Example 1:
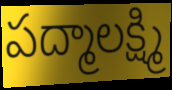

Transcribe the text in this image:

పద్మాలక్ష్మి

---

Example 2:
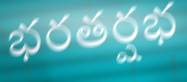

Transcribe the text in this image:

భరతర్షభ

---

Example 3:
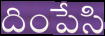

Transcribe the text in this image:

దింపేసి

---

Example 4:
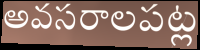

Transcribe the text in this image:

అవసరాలపట్ల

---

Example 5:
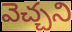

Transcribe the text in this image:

వెచ్చని